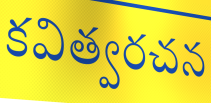
కవిత్వరచన